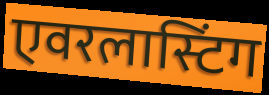
एवरलास्टिंग